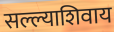
सल्ल्याशिवाय